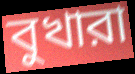
বুখারা